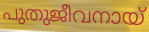
പുതുജീവനായ്